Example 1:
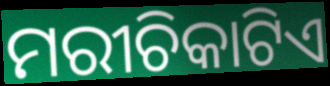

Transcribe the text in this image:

ମରୀଚିକାଟିଏ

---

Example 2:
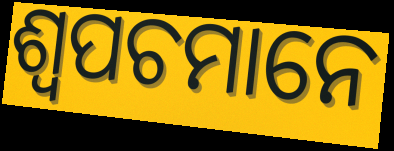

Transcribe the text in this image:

ଶ୍ୱପଚମାନେ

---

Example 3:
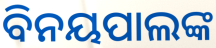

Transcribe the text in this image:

ବିନୟପାଲଙ୍କ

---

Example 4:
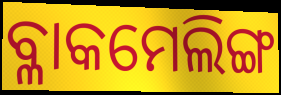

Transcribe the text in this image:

ବ୍ଳାକମେଲିଙ୍ଗ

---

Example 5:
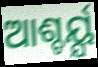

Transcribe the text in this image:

ଆଶ୍ଚର୍ୟ୍ଯ